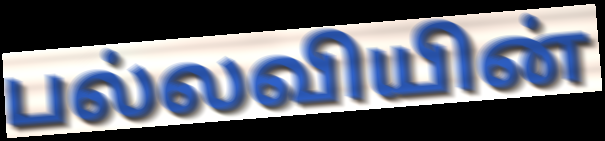
பல்லவியின்